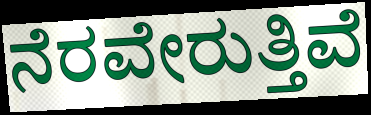
ನೆರವೇರುತ್ತಿವೆ